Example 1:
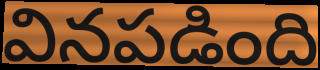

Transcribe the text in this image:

వినపడింది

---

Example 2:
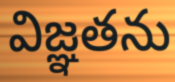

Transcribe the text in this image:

విజ్ఞతను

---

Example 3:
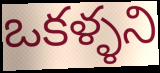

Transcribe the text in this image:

ఒకళ్ళని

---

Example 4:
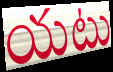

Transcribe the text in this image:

యటు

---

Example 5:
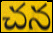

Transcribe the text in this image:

చన